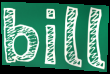
bill